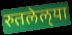
रुतलेल्या